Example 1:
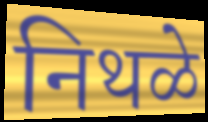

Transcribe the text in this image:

निथळे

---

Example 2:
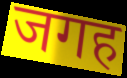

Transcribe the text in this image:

जगह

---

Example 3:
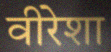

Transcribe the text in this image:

वीरेशा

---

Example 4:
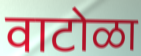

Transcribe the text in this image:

वाटोळा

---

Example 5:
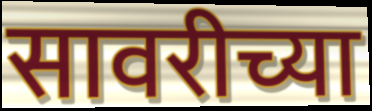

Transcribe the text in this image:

सावरीच्या